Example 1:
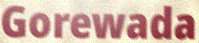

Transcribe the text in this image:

Gorewada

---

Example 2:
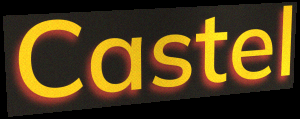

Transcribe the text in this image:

Castel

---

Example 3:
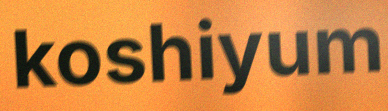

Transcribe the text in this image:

koshiyum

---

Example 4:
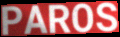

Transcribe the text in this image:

PAROS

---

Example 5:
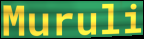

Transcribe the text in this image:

Muruli